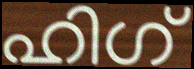
ഹിഗ്